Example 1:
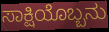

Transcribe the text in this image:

ಸಾಕ್ಷಿಯೊಬ್ಬನು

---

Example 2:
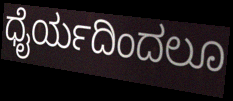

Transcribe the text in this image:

ಧೈರ್ಯದಿಂದಲೂ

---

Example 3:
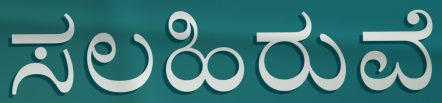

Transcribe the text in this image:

ಸಲಹಿರುವೆ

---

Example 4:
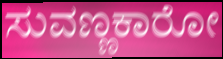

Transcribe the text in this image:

ಸುವಣ್ಣಕಾರೋ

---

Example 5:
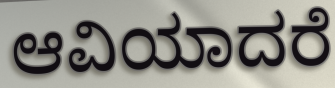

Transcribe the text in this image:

ಆವಿಯಾದರೆ